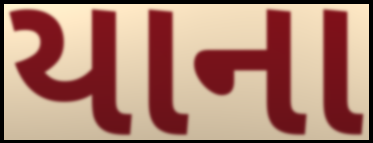
યાના